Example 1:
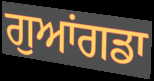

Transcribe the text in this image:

ਗੁਆਂਗਡਾ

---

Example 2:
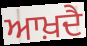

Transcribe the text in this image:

ਆਖ਼ਦੈ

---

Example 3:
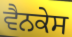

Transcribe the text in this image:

ਵੈਨਕੇਸ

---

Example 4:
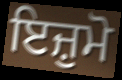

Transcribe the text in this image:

ਇਜ਼ੁਮੋ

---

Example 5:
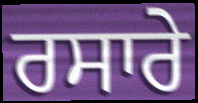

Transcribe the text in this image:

ਰਸਾਰੇ